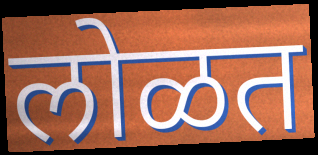
लोळत